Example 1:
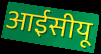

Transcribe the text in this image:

आईसीयू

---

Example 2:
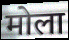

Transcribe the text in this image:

मोला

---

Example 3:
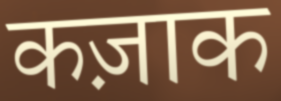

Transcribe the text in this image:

कज़ाक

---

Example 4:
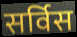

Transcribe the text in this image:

सर्विस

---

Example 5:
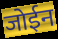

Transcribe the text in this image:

जोईन